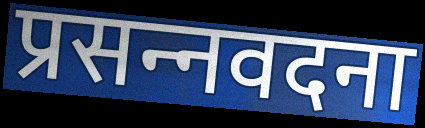
प्रसन्नवदना